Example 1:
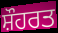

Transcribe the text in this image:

ਸ਼ੌਹਰਤ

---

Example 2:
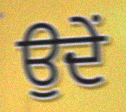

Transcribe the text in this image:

ਉਦੇਂ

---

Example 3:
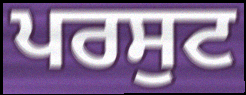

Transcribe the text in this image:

ਪਰਸੁਟ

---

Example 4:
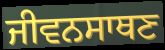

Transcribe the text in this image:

ਜੀਵਨਸਾਥਣ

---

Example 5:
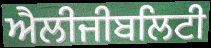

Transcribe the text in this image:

ਐਲੀਜੀਬਲਿਟੀ